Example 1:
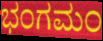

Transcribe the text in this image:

ಭಂಗಮಂ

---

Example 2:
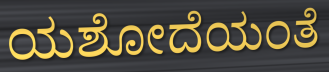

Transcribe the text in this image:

ಯಶೋದೆಯಂತೆ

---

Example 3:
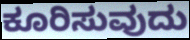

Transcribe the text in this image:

ಕೂರಿಸುವುದು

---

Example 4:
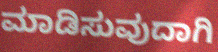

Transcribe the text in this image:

ಮಾಡಿಸುವುದಾಗಿ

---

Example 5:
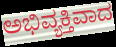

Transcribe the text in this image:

ಅಭಿವ್ಯಕ್ತಿವಾದ